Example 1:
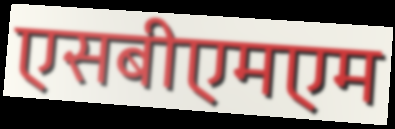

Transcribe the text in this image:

एसबीएमएम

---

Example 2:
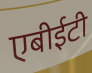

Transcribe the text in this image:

एबीईटी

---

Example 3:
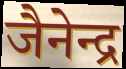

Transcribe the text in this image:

जैनेन्‍द्र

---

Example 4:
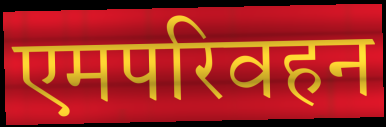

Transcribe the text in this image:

एमपरिवहन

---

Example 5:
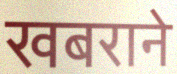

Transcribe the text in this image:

खबराने